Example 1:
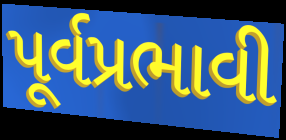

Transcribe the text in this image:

પૂર્વપ્રભાવી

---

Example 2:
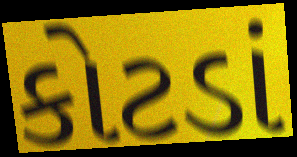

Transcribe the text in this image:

કોટડાં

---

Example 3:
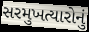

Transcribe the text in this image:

સરમુખત્યારોનું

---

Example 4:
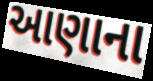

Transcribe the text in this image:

આણાના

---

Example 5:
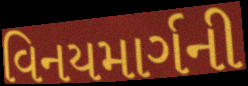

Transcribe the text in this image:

વિનયમાર્ગની